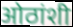
ओठांशी